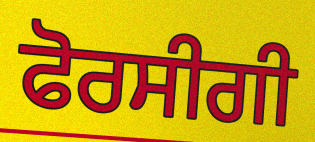
ਫੋਰਸੀਗੀ